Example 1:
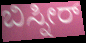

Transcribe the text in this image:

ಬಿಸ್ನೀರ್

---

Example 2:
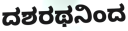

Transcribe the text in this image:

ದಶರಥನಿಂದ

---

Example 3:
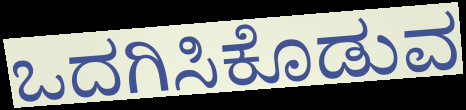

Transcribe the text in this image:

ಒದಗಿಸಿಕೊಡುವ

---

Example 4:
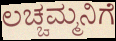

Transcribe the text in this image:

ಲಚ್ಚಮ್ಮನಿಗೆ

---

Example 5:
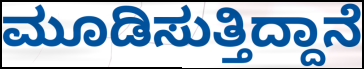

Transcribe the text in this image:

ಮೂಡಿಸುತ್ತಿದ್ದಾನೆ